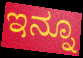
ಇನ್ನೂ